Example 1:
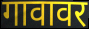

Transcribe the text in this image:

गावावर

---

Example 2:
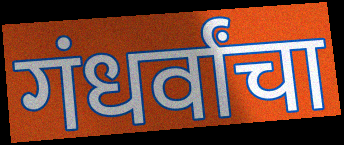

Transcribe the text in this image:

गंधर्वांचा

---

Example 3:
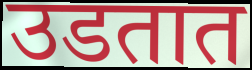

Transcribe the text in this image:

उडतात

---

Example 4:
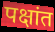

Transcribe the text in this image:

पक्षांत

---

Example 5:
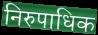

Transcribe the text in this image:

निरुपाधिक